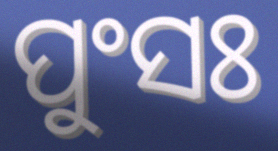
ପୁଂସଃ